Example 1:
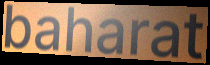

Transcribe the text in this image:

baharat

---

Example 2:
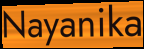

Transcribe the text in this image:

Nayanika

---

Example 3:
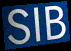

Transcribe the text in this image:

SIB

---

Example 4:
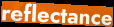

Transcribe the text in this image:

reflectance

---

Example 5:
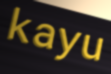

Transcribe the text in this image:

kayu